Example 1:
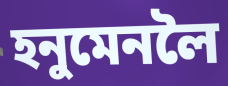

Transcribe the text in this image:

হনুমেনলৈ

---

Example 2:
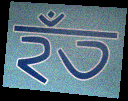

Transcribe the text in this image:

হঁত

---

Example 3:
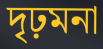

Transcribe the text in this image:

দৃঢ়মনা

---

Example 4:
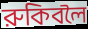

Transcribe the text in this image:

ৰুকিবলৈ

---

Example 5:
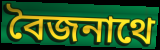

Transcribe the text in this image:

বৈজনাথে